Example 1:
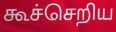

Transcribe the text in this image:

கூச்செறிய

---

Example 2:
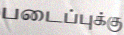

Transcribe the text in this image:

படைப்புக்கு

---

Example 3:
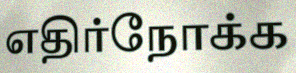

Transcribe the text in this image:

எதிர்நோக்க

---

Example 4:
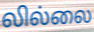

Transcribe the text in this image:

லில்லை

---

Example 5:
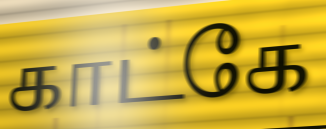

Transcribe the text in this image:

காட்கே